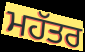
ਮਹੱਤਰ